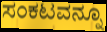
ಸಂಕಟವನ್ನೂ